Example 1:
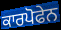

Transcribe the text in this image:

ਕਾਰਪੋਫੇਨ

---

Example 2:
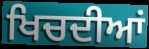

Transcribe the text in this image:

ਖਿਚਦੀਆਂ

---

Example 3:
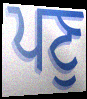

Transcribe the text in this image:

ਪਣੁ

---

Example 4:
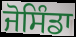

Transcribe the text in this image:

ਜੋਸਿੰਡਾ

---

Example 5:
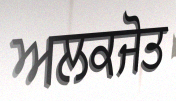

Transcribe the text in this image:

ਅਲਕਜੋਤ